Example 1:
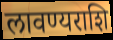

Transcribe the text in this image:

लावण्यराशि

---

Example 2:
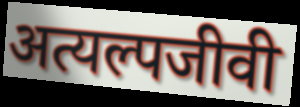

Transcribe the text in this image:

अत्यल्पजीवी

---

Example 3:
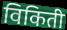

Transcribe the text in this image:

विकिती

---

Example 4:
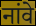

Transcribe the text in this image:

नांवे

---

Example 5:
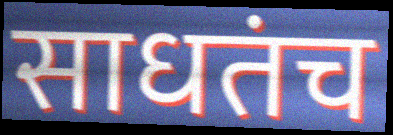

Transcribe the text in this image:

साधतंच